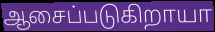
ஆசைப்படுகிறாயா